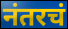
नंतरचं